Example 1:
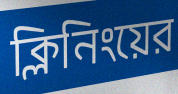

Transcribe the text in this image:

ক্লিনিংয়ের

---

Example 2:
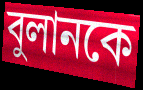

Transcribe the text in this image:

বুলানকে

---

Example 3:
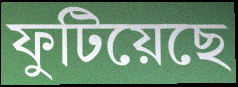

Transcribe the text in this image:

ফুটিয়েছে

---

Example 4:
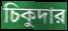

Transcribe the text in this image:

চিকুদার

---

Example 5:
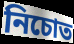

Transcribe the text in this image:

নিচোত